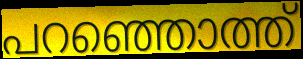
പറഞ്ഞൊത്ത്